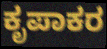
ಕೃಪಾಕರ